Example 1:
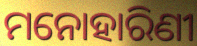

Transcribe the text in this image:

ମନୋହାରିଣୀ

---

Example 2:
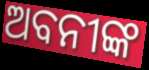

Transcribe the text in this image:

ଅବନୀଙ୍କ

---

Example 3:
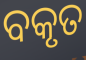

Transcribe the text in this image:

ବକୃତ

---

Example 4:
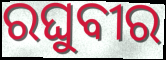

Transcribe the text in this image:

ରଘୁବୀର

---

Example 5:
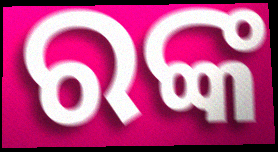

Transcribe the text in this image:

ରଙ୍କ